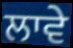
ਲਾਵੇ